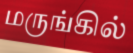
மருங்கில்